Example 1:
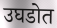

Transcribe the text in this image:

उघडोत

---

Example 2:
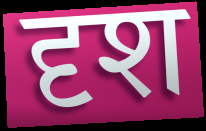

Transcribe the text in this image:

दृश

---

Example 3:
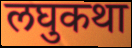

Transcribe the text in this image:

लघुकथा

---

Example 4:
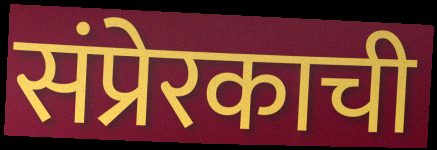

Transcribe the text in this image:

संप्रेरकाची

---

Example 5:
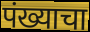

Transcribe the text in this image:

पंख्याचा